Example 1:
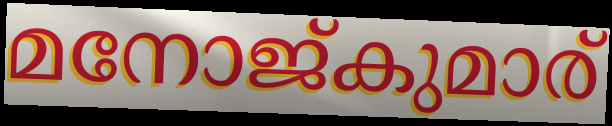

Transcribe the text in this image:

മനോജ്കുമാര്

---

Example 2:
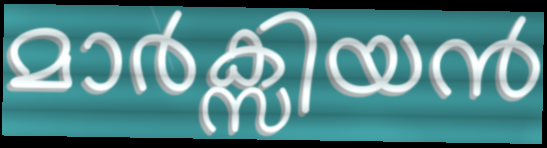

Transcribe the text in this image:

മാർക്സിയൻ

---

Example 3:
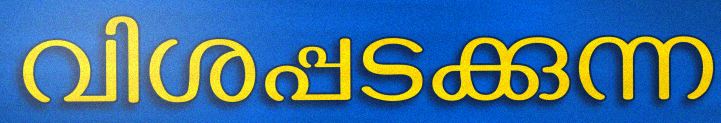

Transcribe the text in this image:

വിശപ്പടക്കുന്ന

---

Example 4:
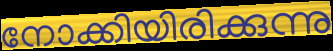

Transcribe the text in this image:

നോക്കിയിരിക്കുന്നു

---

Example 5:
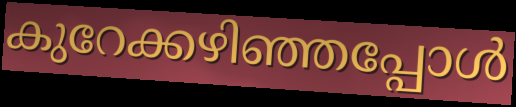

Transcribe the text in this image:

കുറേക്കഴിഞ്ഞപ്പോൾ